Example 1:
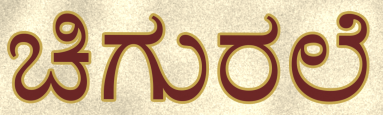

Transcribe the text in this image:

ಚಿಗುರಲೆ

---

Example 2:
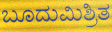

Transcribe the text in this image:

ಬೂದುಮಿಶ್ರಿತ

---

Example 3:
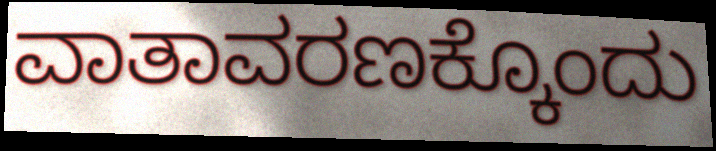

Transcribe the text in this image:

ವಾತಾವರಣಕ್ಕೊಂದು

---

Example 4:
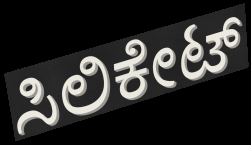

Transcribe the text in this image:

ಸಿಲಿಕೇಟ್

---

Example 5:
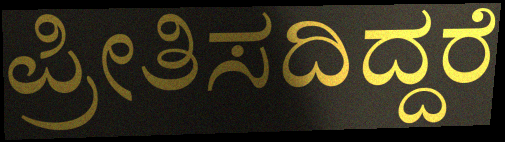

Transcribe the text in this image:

ಪ್ರೀತಿಸದಿದ್ದರೆ